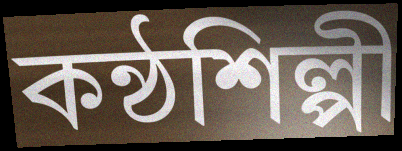
কন্ঠশিল্পী